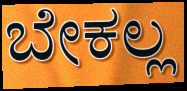
ಬೇಕಲ್ಲ